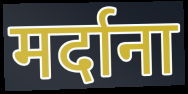
मर्दाना